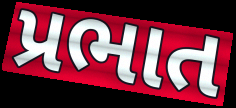
પ્રભાત